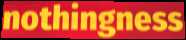
nothingness